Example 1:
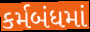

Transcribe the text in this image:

કર્મબંધમાં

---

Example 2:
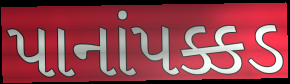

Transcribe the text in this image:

પાનાંપક્કડ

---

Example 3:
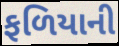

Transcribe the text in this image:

ફળિયાની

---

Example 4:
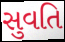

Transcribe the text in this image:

સુવતિ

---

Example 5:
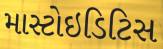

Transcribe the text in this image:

માસ્ટોઇડિટિસ